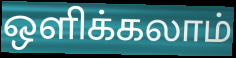
ஒளிக்கலாம்